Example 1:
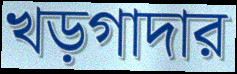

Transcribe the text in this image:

খড়গাদার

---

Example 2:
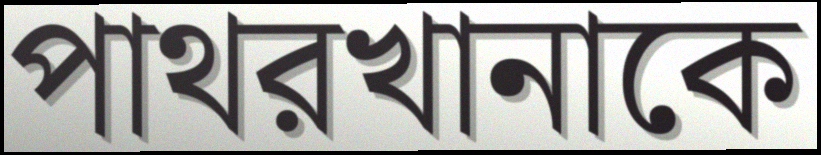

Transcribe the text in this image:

পাথরখানাকে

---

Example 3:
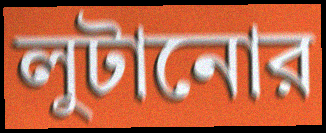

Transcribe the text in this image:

লুটানোর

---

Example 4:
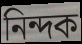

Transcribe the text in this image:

নিন্দক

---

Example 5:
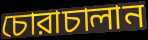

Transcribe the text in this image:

চোরাচালান